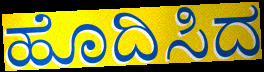
ಹೊದಿಸಿದ